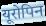
यूरोपिन